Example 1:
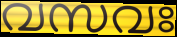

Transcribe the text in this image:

വസവഃ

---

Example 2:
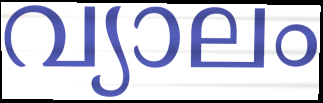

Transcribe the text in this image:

വ്യാലം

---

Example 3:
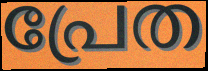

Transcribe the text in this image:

പ്രേത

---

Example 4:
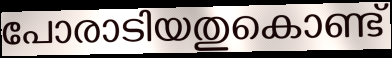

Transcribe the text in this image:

പോരാടിയതുകൊണ്ട്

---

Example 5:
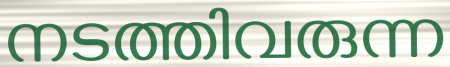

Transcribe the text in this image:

നടത്തിവരുന്ന